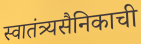
स्वातंत्र्यसैनिकाची